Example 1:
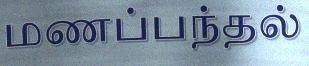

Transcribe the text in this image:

மணப்பந்தல்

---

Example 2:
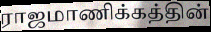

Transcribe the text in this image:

ராஜமாணிக்கத்தின்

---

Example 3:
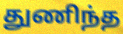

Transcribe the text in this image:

துணிந்த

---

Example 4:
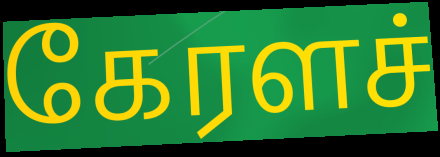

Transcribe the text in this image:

கேரளச்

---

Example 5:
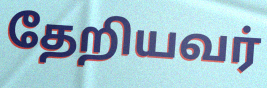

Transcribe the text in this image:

தேறியவர்